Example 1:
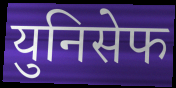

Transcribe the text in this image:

युनिसेफ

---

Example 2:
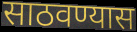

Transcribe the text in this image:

साठवण्यास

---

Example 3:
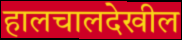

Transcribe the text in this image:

हालचालदेखील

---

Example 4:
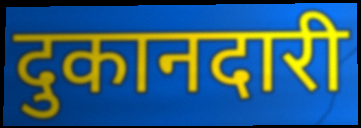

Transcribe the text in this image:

दुकानदारी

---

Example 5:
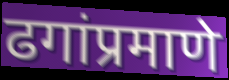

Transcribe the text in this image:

ढगांप्रमाणे